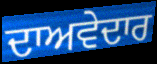
ਦਾਅਵੇਦਾਰ